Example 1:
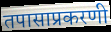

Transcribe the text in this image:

तपासाप्रकरणी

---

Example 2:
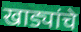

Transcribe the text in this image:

खाड्यांचे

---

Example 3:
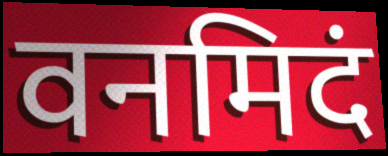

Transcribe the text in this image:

वनमिदं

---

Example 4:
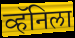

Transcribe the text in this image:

व्हॅनिला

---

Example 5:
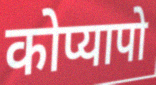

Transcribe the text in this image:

कोप्यापो